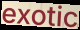
exotic